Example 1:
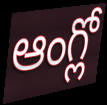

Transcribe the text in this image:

ఆంగ్లో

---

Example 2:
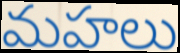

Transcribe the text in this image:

మహలు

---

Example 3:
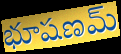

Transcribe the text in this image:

భూషణమ్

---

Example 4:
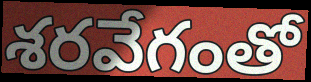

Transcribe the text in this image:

శరవేగంతో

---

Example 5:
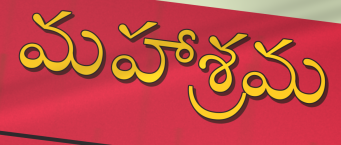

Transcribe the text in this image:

మహాశ్రమ